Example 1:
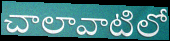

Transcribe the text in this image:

చాలావాటిలో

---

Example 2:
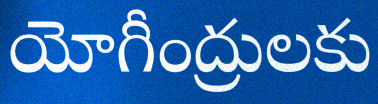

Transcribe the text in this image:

యోగీంద్రులకు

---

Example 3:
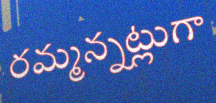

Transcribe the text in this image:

రమ్మన్నట్లుగా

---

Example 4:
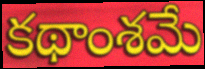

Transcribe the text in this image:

కథాంశమే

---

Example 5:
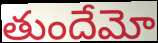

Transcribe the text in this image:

తుందేమో